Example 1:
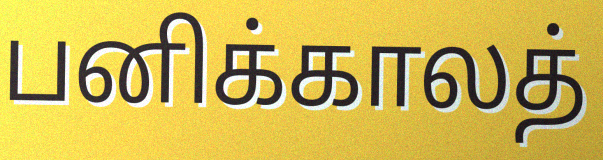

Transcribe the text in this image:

பனிக்காலத்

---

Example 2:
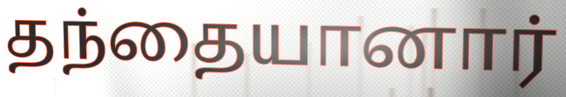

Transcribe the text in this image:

தந்தையானார்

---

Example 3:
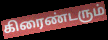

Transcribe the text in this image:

கிரைண்டரும்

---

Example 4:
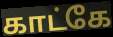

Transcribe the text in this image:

காட்கே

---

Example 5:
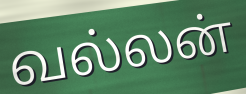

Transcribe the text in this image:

வல்லன்